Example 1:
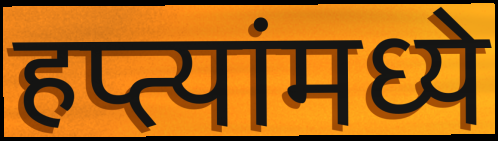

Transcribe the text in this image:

हप्त्यांमध्ये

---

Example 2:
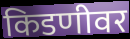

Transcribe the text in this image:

किडणीवर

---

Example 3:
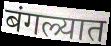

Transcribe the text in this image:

बंगल्यात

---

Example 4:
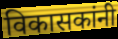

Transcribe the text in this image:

विकासकांनी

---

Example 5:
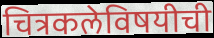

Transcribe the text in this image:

चित्रकलेविषयीची